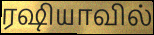
ரஷியாவில்